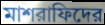
মাশরাফিদের